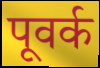
पूवर्क